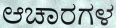
ಆಚಾರಗಳ